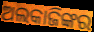
ଅଲକାଜିଙ୍କର